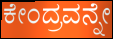
ಕೇಂದ್ರವನ್ನೇ